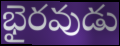
భైరవుడు